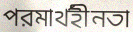
পরমার্থহীনতা